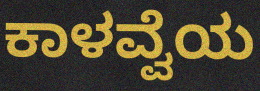
ಕಾಳವ್ವೆಯ